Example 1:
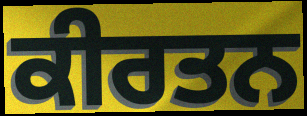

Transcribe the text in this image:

ਕੀਰਤਨ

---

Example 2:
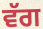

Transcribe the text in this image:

ਵੱਗ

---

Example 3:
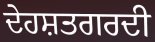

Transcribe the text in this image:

ਦੇਹਸ਼ਤਗਰਦੀ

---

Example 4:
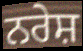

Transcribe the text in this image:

ਨਰੇਸ਼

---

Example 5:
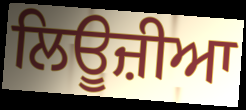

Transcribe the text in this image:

ਲਿਊਜ਼ੀਆ